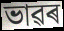
ভাৱৰ